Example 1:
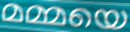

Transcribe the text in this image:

മമ്മയെ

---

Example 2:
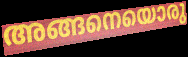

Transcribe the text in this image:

അങ്ങനെയൊരു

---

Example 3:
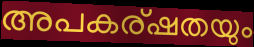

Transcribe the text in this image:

അപകര്ഷതയും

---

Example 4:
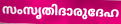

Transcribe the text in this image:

സംസൃതിദാരുദേഹ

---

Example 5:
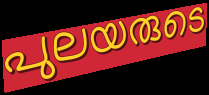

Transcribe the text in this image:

പുലയരുടെ